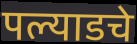
पल्याडचे